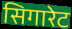
सिगारेट